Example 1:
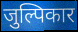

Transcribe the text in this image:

जुल्पिकार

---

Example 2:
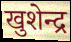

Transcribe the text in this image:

खुशेन्द्र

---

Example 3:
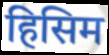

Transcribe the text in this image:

हिसिम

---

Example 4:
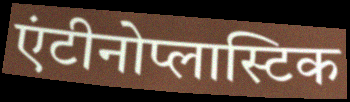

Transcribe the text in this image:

एंटीनोप्लास्टिक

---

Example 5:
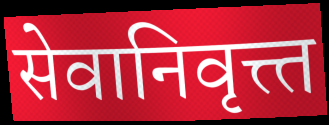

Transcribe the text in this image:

सेवानिवृत्त्त